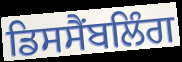
ਡਿਸਸੈਂਬਲਿੰਗ